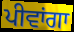
ਪੀਵਾਂਗਾ